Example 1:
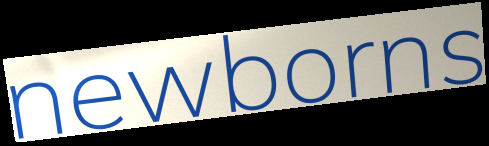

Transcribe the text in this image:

newborns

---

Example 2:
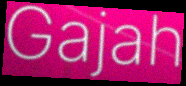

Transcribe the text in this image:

Gajah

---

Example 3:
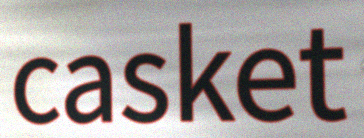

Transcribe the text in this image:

casket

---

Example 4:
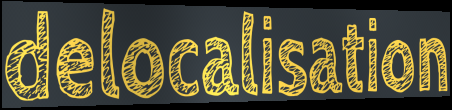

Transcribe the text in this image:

delocalisation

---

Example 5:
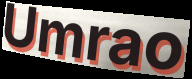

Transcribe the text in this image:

Umrao